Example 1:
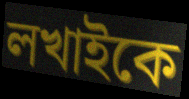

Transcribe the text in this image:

লখাইকে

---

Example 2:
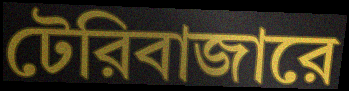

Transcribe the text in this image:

টেরিবাজারে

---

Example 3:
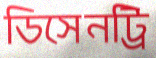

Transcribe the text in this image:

ডিসেনট্রি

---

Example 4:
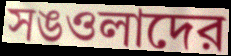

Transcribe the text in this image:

সঙওলাদের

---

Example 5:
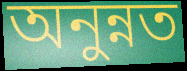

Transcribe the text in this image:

অনুন্নত